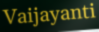
Vaijayanti